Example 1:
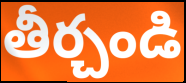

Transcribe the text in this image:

తీర్చండి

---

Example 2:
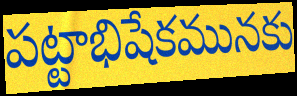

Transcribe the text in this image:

పట్టాభిషేకమునకు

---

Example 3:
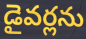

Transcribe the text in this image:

డైవర్లను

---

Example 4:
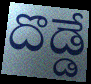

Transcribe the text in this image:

దొడ్డే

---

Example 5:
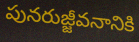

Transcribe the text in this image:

పునరుజ్జీవనానికి